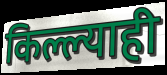
किल्ल्याही